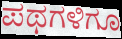
ಪಥಗಳಿಗೂ